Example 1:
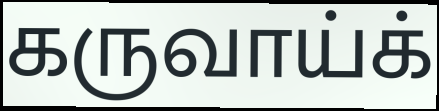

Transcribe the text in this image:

கருவாய்க்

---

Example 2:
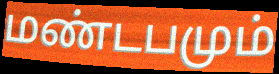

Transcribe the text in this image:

மண்டபமும்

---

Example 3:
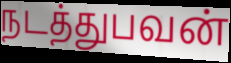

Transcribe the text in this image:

நடத்துபவன்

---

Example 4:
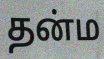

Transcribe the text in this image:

தன்ம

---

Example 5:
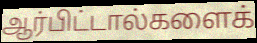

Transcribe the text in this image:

ஆர்பிட்டால்களைக்